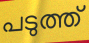
പടുത്ത്